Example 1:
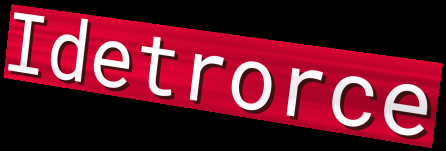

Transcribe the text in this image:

Idetrorce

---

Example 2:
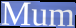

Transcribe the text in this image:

Mum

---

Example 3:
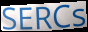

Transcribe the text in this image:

SERCs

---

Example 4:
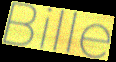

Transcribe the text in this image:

Bille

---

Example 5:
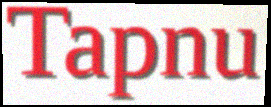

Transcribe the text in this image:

Tapnu